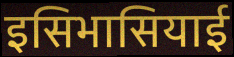
इसिभासियाई